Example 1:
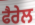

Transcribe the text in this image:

ਫੈਰੇਲ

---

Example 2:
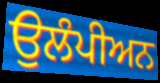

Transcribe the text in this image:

ਉੁਲੰਪੀਅਨ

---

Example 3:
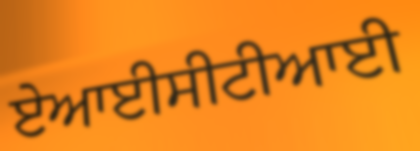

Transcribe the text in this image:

ਏਆਈਸੀਟੀਆਈ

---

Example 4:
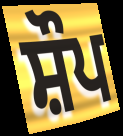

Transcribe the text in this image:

ਸ਼ੌਪ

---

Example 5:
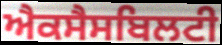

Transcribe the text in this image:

ਐਕਸੈਸਬਿਲਟੀ